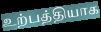
உற்பத்தியாக